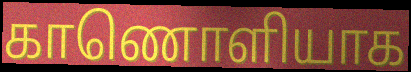
காணொளியாக